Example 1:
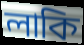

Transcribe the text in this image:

লাকি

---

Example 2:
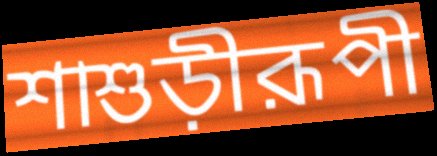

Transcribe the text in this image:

শাশুড়ীরূপী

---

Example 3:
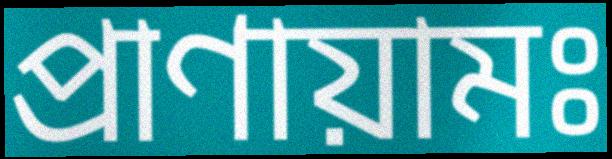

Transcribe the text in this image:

প্রাণায়ামঃ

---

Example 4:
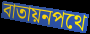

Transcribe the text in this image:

বাতায়নপথে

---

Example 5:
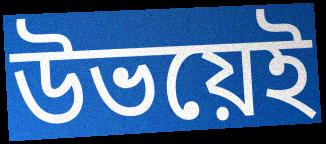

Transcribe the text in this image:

উভয়েই